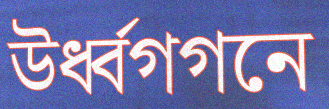
উর্ধ্বগগনে